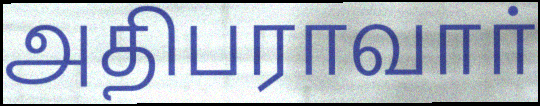
அதிபராவார்